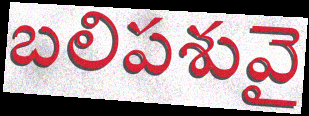
బలిపశువై